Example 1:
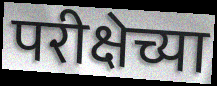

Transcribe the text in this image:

परीक्षेच्या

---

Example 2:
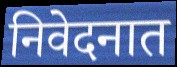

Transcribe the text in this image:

निवेदनात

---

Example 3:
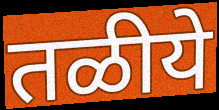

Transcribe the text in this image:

तळीये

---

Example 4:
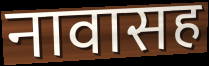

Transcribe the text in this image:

नावासह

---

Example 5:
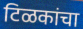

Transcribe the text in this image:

टिळकांचा